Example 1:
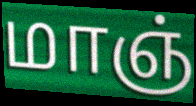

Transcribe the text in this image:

மாஞ்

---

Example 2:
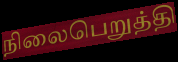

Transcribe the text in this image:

நிலைபெறுத்தி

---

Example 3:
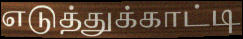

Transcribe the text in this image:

எடுத்துக்காட்டி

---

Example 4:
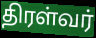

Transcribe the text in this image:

திரள்வர்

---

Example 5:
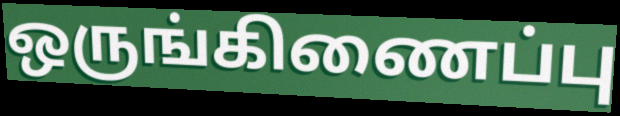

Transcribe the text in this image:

ஒருங்கிணைப்பு